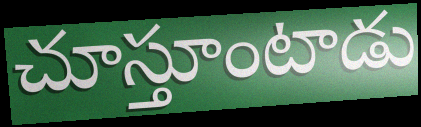
చూస్తూంటాడు